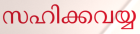
സഹിക്കവയ്യ